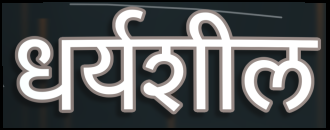
धर्यशील